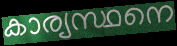
കാര്യസ്ഥനെ